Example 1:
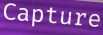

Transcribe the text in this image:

Capture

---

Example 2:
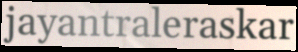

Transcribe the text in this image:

jayantraleraskar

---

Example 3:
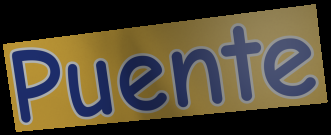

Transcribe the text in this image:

Puente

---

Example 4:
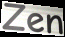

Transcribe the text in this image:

Zen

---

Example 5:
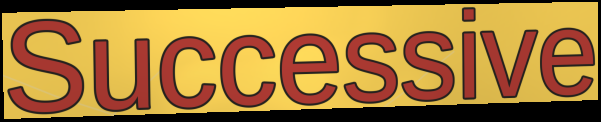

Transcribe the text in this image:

Successive